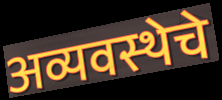
अव्यवस्थेचे